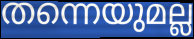
തന്നെയുമല്ല